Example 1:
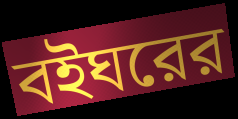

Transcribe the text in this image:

বইঘরের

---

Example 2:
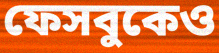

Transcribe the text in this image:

ফেসবুকেও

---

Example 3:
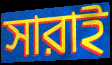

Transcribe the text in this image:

সারাই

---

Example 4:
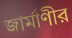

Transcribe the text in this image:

জার্মাণীর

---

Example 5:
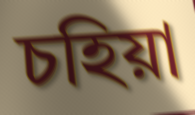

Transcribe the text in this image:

চহিয়া